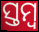
ସ୍ତମ୍ବ